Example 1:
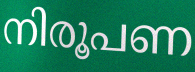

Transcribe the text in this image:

നിരൂപണ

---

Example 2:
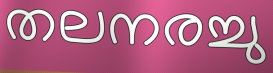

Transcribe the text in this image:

തലനരച്ചു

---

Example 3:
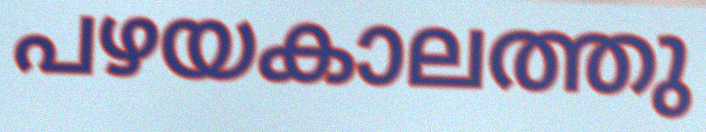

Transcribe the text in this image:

പഴയകാലത്തു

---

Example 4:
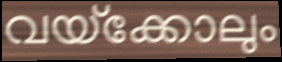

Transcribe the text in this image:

വയ്‌ക്കോലും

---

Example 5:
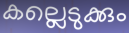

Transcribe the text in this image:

കല്ലെടുക്കും